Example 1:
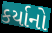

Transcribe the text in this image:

કર્યાનો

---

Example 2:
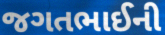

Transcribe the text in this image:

જગતભાઈની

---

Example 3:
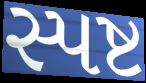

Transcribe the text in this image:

સ્પષ્ટ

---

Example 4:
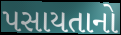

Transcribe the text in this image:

પસાયતાનો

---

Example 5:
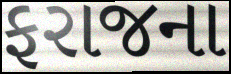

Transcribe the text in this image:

ફરાજના